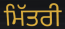
ਮਿੱਤਰੀ